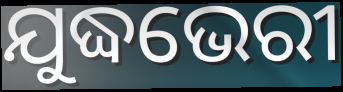
ଯୁଦ୍ଧଭେରୀ